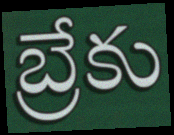
బ్రేకు